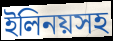
ইলিনয়সহ